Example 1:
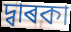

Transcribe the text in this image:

দ্বাৰকা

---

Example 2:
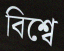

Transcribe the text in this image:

বিশ্বে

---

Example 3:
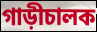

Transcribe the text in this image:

গাড়ীচালক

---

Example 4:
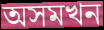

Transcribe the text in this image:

অসমখন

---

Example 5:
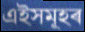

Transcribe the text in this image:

এইসমূহৰ